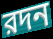
রদন